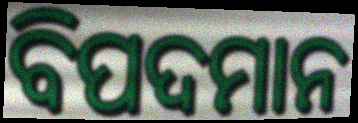
ବିପଦମାନ